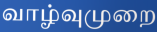
வாழ்வுமுறை